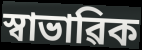
স্বাভাৱিক